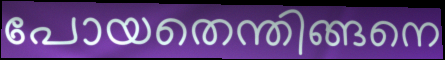
പോയതെന്തിങ്ങനെ